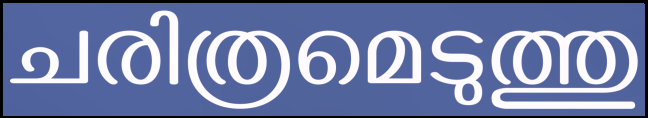
ചരിത്രമെടുത്തു